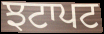
ਝਟਾਪਟ